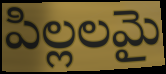
పిల్లలమై